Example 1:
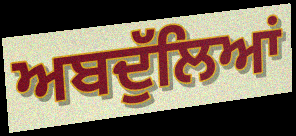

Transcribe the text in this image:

ਅਬਦੁੱਲਿਆਂ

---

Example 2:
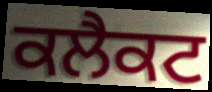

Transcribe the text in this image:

ਕਲੈਕਟ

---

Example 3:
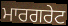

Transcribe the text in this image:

ਮਾਰਗਰੇਟ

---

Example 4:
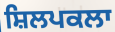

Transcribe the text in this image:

ਸ਼ਿਲਪਕਲਾ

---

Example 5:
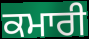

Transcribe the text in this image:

ਕਮਾਰੀ